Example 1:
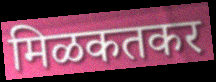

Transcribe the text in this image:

मिळकतकर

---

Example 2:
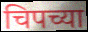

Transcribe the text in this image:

चिपच्या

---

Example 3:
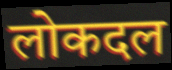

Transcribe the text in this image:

लोकदल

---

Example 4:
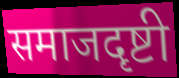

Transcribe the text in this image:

समाजदृष्टी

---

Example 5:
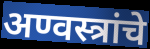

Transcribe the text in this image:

अण्वस्त्रांचे